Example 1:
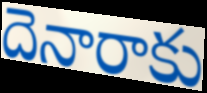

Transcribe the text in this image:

దెనారాకు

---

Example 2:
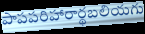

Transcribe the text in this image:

పాపపరిహారార్థబలియగు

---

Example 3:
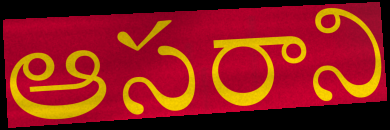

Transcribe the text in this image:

ఆసరాని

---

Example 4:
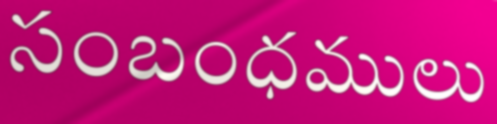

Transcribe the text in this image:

సంబంధములు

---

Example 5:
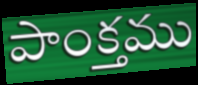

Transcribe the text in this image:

పాంక్తము